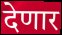
देणार